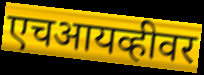
एचआयव्हीवर